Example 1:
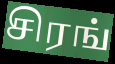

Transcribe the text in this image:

சிரங்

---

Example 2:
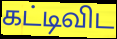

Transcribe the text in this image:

கட்டிவிட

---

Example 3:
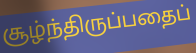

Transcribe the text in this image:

சூழ்ந்திருப்பதைப்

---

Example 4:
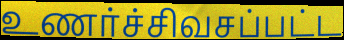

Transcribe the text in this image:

உணர்ச்சிவசப்பட்ட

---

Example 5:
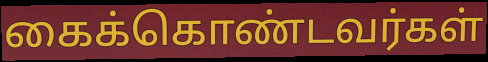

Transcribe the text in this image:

கைக்கொண்டவர்கள்